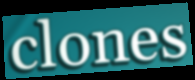
clones